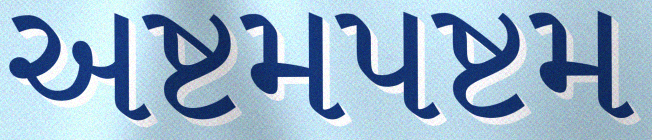
અષ્ટમપષ્ટમ